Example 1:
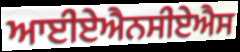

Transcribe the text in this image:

ਆਈਏਐਨਸੀਏਐਸ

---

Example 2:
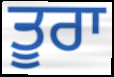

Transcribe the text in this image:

ਤੂਰਾ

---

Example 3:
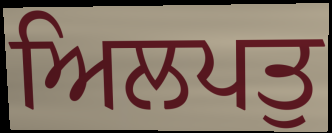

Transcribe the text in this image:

ਅਿਲਪਤੁ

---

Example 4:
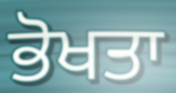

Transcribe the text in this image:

ਭੋਖਤਾ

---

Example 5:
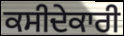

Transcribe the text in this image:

ਕਸੀਦੇਕਾਰੀ